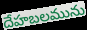
దేహబలమును